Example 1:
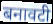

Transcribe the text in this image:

बनावटी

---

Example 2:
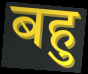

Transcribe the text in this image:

बहु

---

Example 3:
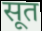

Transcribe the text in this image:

सूत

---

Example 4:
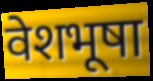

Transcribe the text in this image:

वेशभूषा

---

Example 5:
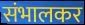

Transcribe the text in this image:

संभालकर